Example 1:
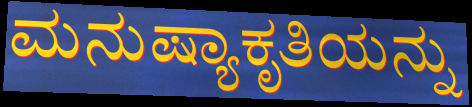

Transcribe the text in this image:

ಮನುಷ್ಯಾಕೃತಿಯನ್ನು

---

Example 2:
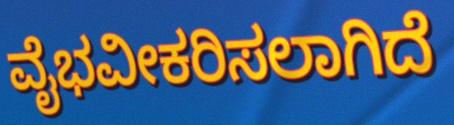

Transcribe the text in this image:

ವೈಭವೀಕರಿಸಲಾಗಿದೆ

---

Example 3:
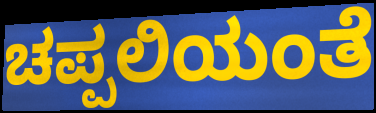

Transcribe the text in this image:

ಚಪ್ಪಲಿಯಂತೆ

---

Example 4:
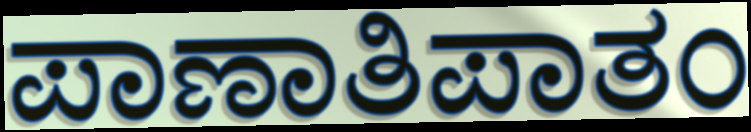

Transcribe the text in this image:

ಪಾಣಾತಿಪಾತಂ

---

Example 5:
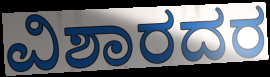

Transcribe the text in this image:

ವಿಶಾರದರ